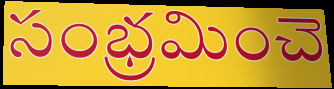
సంభ్రమించె